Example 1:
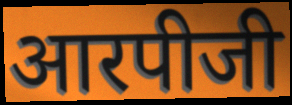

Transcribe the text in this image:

आरपीजी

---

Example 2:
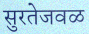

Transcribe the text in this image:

सुरतेजवळ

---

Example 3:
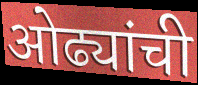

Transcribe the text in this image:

ओढ्यांची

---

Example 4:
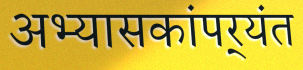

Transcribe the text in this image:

अभ्यासकांपर्यंत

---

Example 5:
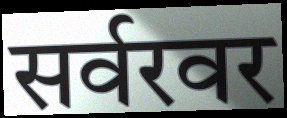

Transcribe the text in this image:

सर्वरवर